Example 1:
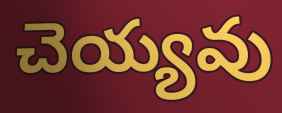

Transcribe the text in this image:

చెయ్యవు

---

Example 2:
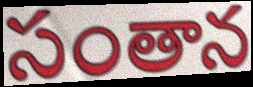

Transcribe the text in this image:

సంతాన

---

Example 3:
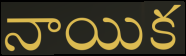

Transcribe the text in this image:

నాయిక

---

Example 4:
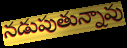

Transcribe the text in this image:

నడుపుతున్నావు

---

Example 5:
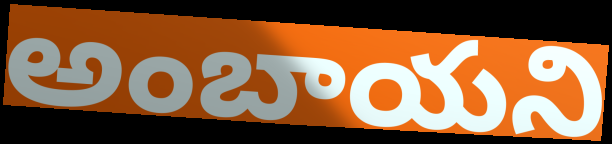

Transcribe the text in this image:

అంబాయని